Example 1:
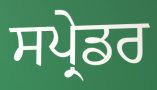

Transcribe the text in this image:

ਸਪ੍ਰੇਡਰ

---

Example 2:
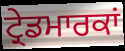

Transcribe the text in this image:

ਟ੍ਰੇਡਮਾਰਕਾਂ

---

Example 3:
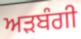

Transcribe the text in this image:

ਅੜਬੰਗੀ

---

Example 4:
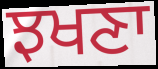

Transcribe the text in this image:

ਝਖਣਾ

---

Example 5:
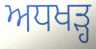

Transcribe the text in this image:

ਅਧਖੜ੍ਹ